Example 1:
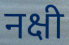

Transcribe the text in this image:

नक्षी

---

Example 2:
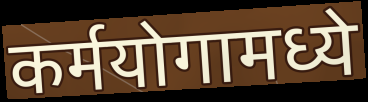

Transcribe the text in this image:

कर्मयोगामध्ये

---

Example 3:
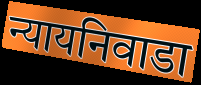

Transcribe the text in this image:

न्यायनिवाडा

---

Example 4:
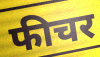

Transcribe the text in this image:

फीचर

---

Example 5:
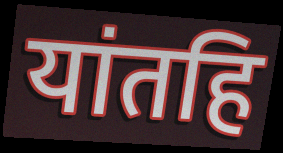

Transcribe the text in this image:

यांतहि